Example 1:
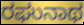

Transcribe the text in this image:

ರಘುನಾಥ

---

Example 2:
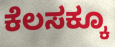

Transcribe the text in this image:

ಕೆಲಸಕ್ಕೂ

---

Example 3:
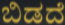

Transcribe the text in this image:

ಬಿಡದೆ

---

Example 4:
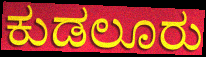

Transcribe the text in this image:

ಕುಡಲೂರು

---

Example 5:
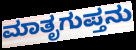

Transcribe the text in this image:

ಮಾತೃಗುಪ್ತನು